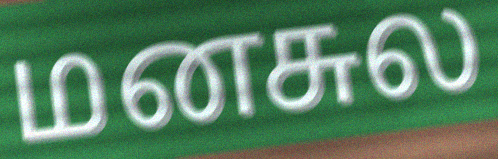
மனசுல